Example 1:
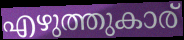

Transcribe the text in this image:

എഴുത്തുകാര്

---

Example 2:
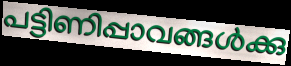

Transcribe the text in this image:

പട്ടിണിപ്പാവങ്ങൾക്കു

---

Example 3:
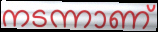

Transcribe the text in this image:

നടന്നാണ്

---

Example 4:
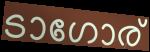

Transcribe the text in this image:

ടാഗോര്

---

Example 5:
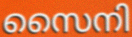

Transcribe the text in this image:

സൈനി